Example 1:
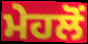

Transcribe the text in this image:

ਮੇਹਲੋਂ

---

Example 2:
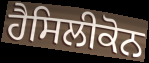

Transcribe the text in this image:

ਹੈਸਿਲੀਕੋਨ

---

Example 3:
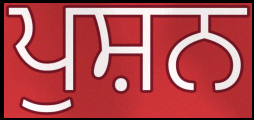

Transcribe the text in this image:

ਪੁਸ਼ਨ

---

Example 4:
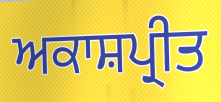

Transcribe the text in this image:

ਅਕਾਸ਼ਪ੍ਰੀਤ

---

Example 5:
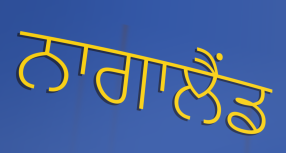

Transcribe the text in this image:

ਨਾਗਾਲੈਂਡ